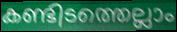
കണ്ടിടത്തെല്ലാം